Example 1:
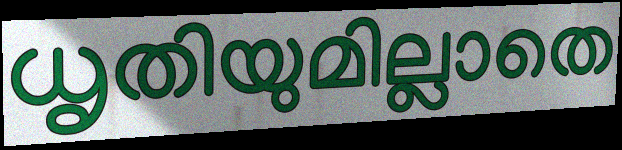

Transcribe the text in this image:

ധൃതിയുമില്ലാതെ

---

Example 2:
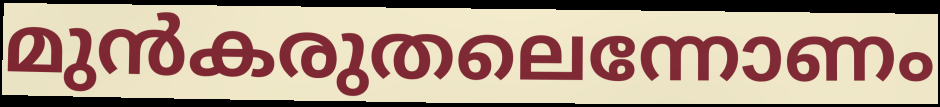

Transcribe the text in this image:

മുൻകരുതലെന്നോണം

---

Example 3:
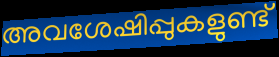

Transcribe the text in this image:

അവശേഷിപ്പുകളുണ്ട്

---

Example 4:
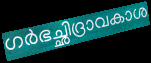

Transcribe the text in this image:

ഗർഭച്ഛിദ്രാവകാശ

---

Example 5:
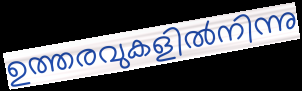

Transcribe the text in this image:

ഉത്തരവുകളിൽനിന്നു